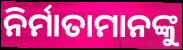
ନିର୍ମାତାମାନଙ୍କୁ